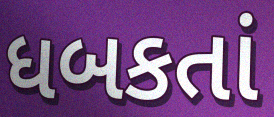
ધબકતાં